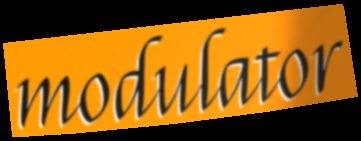
modulator